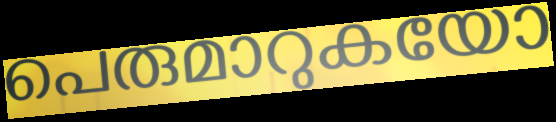
പെരുമാറുകയോ